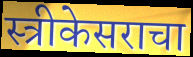
स्त्रीकेसराचा